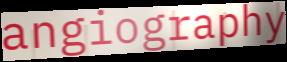
angiography